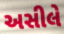
અસીલે